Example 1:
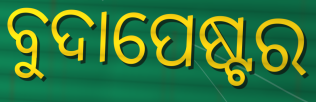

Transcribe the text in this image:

ବୁଦାପେଷ୍ଟର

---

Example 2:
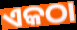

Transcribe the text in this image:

ଏକଠା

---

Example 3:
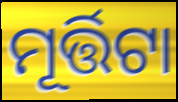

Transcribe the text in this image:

ମୂର୍ତ୍ତିଟା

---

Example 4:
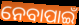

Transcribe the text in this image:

ନେବାପାଇଁ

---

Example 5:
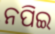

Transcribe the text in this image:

ନପିଇ